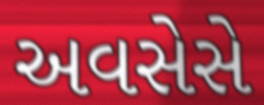
અવસેસે